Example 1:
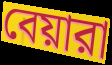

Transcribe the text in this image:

বেয়ারা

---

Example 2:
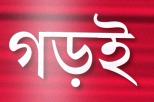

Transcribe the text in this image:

গড়ই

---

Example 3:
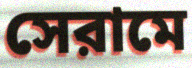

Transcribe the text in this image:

সেরামে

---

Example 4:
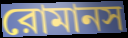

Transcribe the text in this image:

রোমানস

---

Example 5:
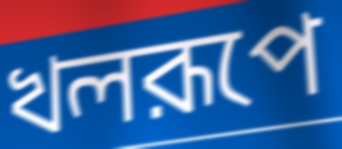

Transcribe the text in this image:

খলরূপে